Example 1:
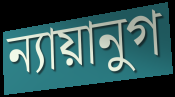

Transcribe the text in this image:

ন্যায়ানুগ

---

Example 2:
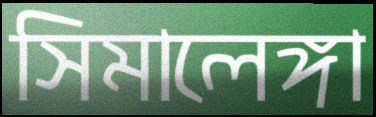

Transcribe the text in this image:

সিমালেঙ্গা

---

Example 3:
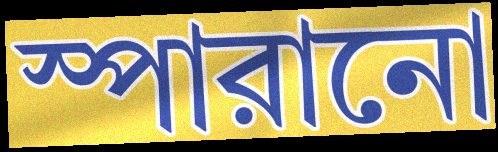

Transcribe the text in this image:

স্পারানো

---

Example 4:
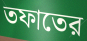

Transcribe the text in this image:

তফাতের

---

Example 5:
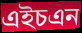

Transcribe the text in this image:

এইচএন